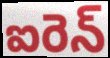
ఐరెన్